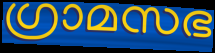
ഗ്രാമസഭ